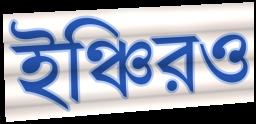
ইঞ্চিরও